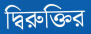
দ্বিরুক্তির